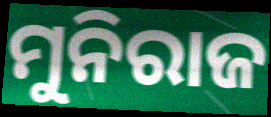
ମୁନିରାଜ